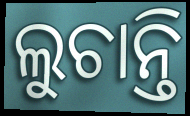
ଲୁଚାନ୍ତି